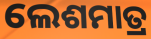
ଲେଶମାତ୍ର